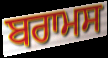
ਬਰਾਮਸ